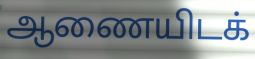
ஆணையிடக்